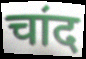
चांद